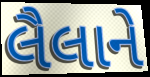
લૈલાને